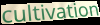
cultivation